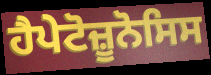
ਹੈਪੇਟੋਜ਼ੂਨੋਸਿਸ